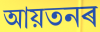
আয়তনৰ